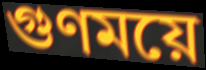
গুণময়ে